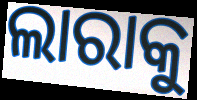
ଲାରାକୁ